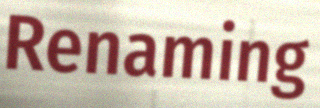
Renaming